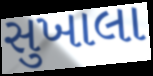
સુખાલા